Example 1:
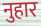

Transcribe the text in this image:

नुहार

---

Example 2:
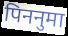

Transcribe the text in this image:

पिननुमा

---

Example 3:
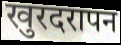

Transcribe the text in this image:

खुरदरापन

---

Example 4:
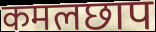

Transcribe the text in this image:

कमलछाप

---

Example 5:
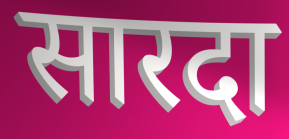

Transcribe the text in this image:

सारदा